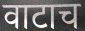
वाटाच